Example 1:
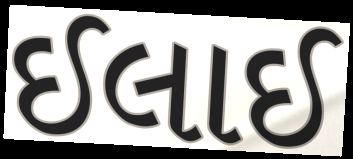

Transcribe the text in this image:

ઈલાઈ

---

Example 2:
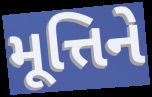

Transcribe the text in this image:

મૂત્તિને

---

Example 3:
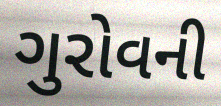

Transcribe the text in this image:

ગુરોવની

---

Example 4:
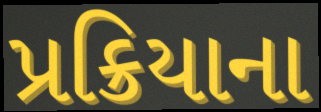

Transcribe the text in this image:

પ્રક્રિયાના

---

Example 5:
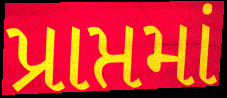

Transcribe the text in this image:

પ્રાપ્તમાં